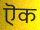
ऎक